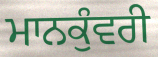
ਮਾਨਕੁੰਵਰੀ